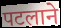
पटलाने